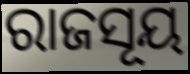
ରାଜସୂୟ